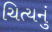
ચિત્યનું